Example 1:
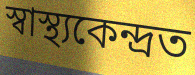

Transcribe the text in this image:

স্বাস্থ্যকেন্দ্ৰত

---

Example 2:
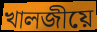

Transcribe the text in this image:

খালজীয়ে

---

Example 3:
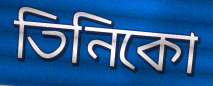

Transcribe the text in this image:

তিনিকো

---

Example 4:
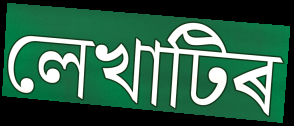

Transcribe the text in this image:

লেখাটিৰ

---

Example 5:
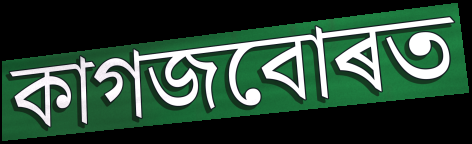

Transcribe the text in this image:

কাগজবোৰত